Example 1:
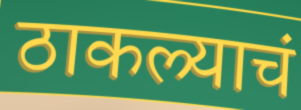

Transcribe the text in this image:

ठाकल्याचं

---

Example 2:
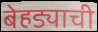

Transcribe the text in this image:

बेहड्याची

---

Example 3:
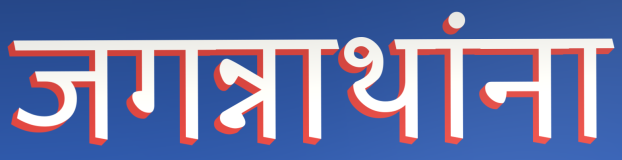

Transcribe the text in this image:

जगन्नाथांना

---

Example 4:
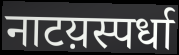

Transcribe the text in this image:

नाटय़स्पर्धा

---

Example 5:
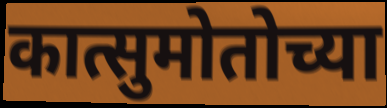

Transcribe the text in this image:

कात्सुमोतोच्या